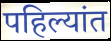
पहिल्यांत